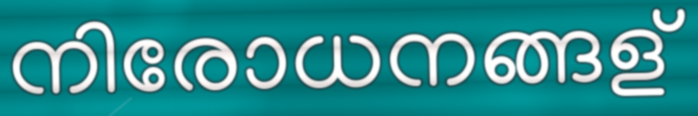
നിരോധനങ്ങള്